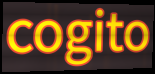
cogito